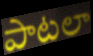
పాటలా